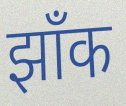
झाँक